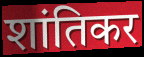
शांतिकर